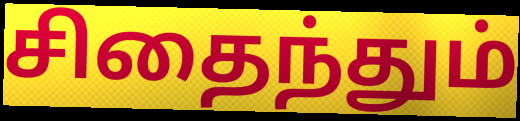
சிதைந்தும்